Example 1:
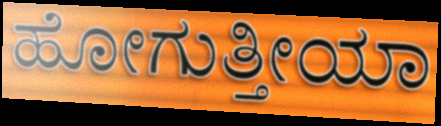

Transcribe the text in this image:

ಹೋಗುತ್ತೀಯಾ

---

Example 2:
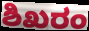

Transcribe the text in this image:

ಶಿಖರಂ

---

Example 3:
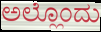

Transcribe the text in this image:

ಅಲ್ಲೊಂದು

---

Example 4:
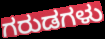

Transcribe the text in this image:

ಗರುಡಗಳು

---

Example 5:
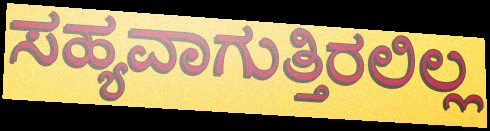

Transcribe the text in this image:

ಸಹ್ಯವಾಗುತ್ತಿರಲಿಲ್ಲ